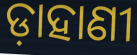
ଡ଼ାହାଣୀ